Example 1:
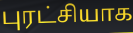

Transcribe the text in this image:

புரட்சியாக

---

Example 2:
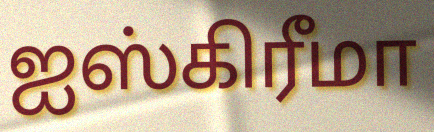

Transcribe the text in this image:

ஐஸ்கிரீமா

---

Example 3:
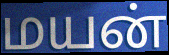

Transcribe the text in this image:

மயன்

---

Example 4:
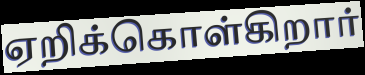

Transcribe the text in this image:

ஏறிக்கொள்கிறார்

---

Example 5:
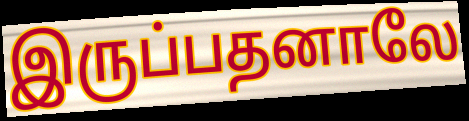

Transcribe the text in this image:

இருப்பதனாலே